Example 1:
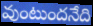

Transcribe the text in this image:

వుంటుందనేది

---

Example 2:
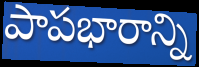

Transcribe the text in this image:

పాపభారాన్ని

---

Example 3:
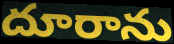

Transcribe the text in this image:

దూరాను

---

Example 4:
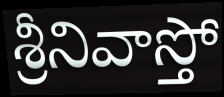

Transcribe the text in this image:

శ్రీనివాస్తో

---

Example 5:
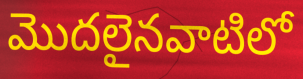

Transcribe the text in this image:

మొదలైనవాటిలో